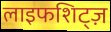
लाइफशिट्ज़